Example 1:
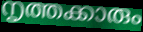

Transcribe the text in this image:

നൃത്തക്കാരും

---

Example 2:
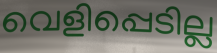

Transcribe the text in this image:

വെളിപ്പെടില്ല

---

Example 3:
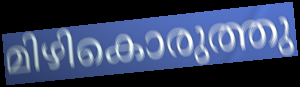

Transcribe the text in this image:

മിഴികൊരുത്തു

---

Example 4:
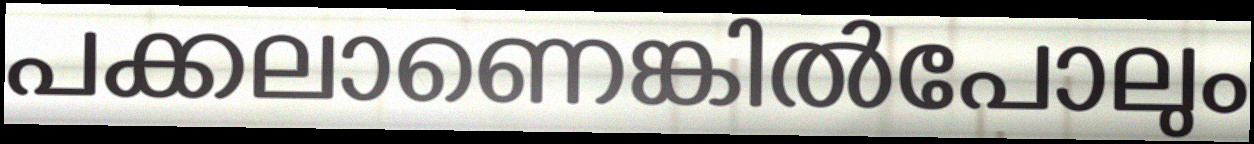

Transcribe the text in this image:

പക്കലാണെങ്കിൽപോലും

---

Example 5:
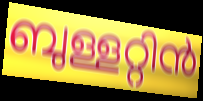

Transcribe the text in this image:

ബുള്ളറ്റിൻ